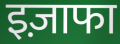
इज़ाफा